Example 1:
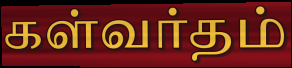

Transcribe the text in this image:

கள்வர்தம்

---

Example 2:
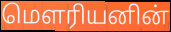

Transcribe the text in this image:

மௌரியனின்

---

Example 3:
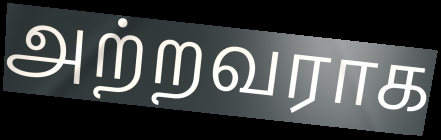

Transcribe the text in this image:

அற்றவராக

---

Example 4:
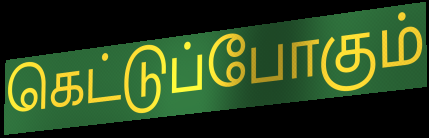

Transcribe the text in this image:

கெட்டுப்போகும்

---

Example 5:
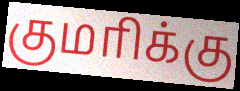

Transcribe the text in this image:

குமரிக்கு